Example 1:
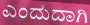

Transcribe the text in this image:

ಎಂದುದಾಗಿ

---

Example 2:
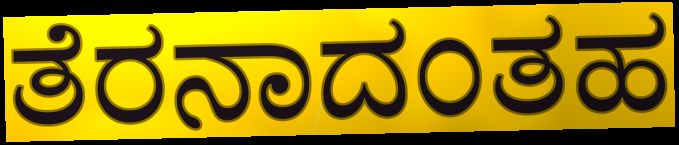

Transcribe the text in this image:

ತೆರನಾದಂತಹ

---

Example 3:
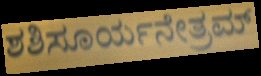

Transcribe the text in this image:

ಶಶಿಸೂರ್ಯನೇತ್ರಮ್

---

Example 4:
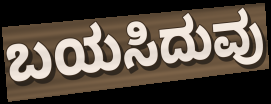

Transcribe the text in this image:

ಬಯಸಿದುವು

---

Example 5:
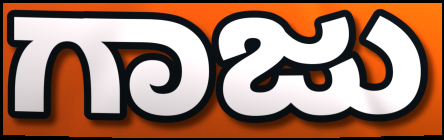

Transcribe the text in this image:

ಗಾಜು